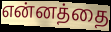
என்னத்தை